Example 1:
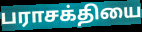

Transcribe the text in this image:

பராசக்தியை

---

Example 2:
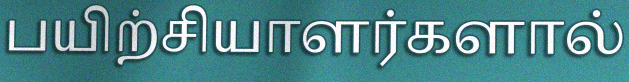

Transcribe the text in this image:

பயிற்சியாளர்களால்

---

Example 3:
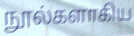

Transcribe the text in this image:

நூல்களாகிய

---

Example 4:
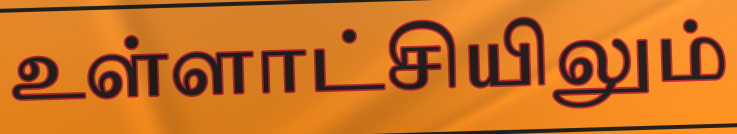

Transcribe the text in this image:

உள்ளாட்சியிலும்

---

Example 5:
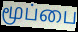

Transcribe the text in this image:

மூப்பை